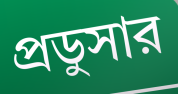
প্রডুসার